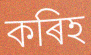
কৰিহ